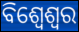
ବିଶ୍ୱେଶ୍ୱର